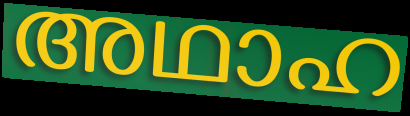
അഥാഹ